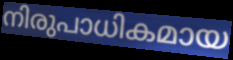
നിരുപാധികമായ